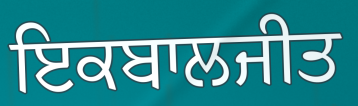
ਇਕਬਾਲਜੀਤ